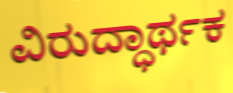
ವಿರುದ್ಧಾರ್ಥಕ